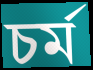
চর্ম